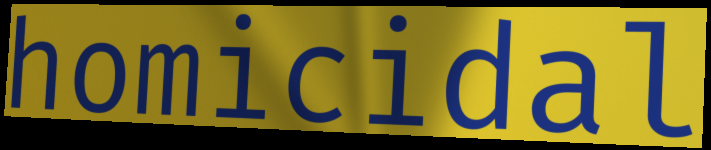
homicidal